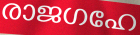
രാജഗഹേ